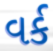
વર્ક